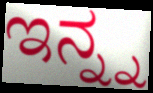
ಇನ್ನ್ನ